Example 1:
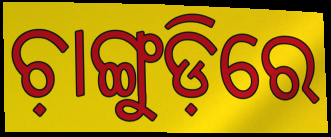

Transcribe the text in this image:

ଚ଼ାଙ୍ଗୁଡ଼ିରେ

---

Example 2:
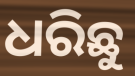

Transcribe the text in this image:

ଧରିଛୁ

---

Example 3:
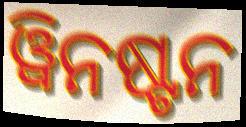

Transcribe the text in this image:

ୱିନଷ୍ଟନ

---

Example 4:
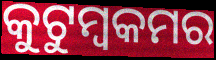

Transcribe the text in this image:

କୁଟୁମ୍ବକମର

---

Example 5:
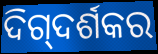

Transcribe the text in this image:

ଦିଗ୍‍ଦର୍ଶକର